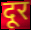
दूर